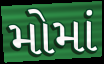
મોમાં